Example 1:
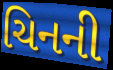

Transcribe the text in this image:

ચિનની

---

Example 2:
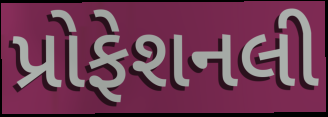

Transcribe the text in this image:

પ્રોફેશનલી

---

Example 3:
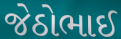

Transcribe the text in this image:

જેઠોભાઈ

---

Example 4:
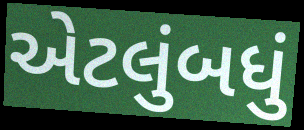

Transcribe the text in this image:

એટલુંબધું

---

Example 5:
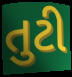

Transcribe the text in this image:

તુટી